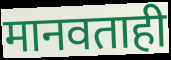
मानवताही